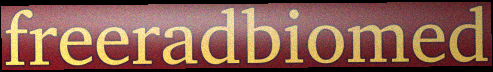
freeradbiomed